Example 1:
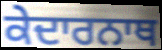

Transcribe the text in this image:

ਕੇਦਾਰਨਾਥ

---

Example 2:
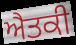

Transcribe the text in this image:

ਐਤਕੀ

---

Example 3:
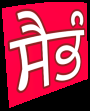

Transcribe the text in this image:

ਸੈਭੰ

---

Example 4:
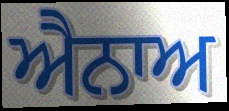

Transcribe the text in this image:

ਐਨਾਅ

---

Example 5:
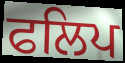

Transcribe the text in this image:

ਫਲਿਪ